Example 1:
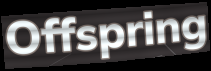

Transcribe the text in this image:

Offspring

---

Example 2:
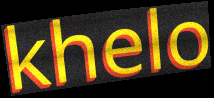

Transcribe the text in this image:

khelo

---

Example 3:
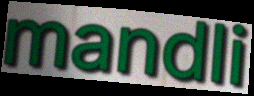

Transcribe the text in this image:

mandli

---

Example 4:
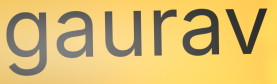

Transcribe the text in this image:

gaurav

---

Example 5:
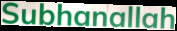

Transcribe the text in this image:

Subhanallah